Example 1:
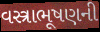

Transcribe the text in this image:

વસ્ત્રાભૂષણની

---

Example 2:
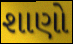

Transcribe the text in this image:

શાણો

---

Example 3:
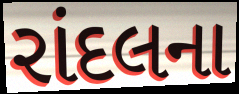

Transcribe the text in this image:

રાંદલના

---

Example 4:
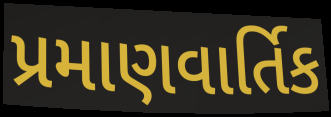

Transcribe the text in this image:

પ્રમાણવાર્તિક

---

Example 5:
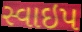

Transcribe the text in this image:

સ્વાઇપ